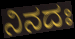
ನಿನದಃ